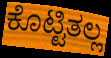
ಕೊಟ್ಟಿತಲ್ಲ